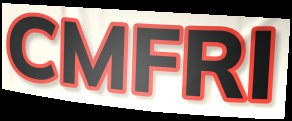
CMFRI